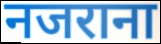
नजराना